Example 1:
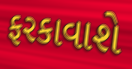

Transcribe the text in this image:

ફરકાવાશે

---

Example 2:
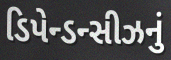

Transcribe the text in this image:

ડિપેન્ડન્સીઝનું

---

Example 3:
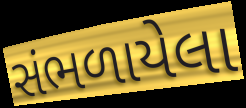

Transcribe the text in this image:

સંભળાયેલા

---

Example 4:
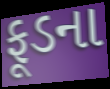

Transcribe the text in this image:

ફૂડના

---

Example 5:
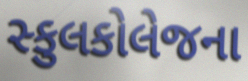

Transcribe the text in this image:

સ્કુલકોલેજના